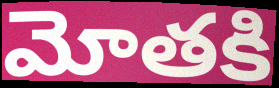
మోతకి